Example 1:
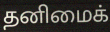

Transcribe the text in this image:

தனிமைக்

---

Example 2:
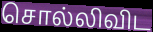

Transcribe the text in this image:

சொல்லிவிட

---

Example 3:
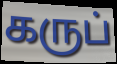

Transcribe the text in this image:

கருப்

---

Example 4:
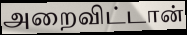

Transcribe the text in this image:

அறைவிட்டான்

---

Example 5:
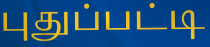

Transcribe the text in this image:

புதுப்பட்டி